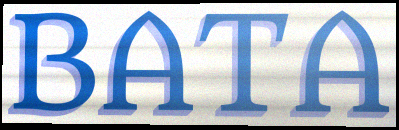
BATA